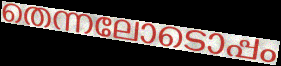
തെന്നലോടൊപ്പം